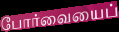
போர்வையைப்